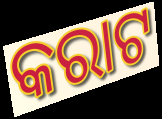
କରାଟ